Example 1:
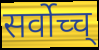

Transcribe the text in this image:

सर्वोच्च्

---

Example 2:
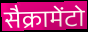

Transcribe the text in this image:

सैक्रामेंटो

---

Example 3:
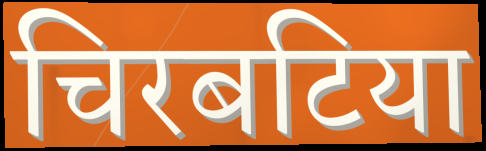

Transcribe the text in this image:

चिरबटिया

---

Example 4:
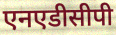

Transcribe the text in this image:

एनएडीसीपी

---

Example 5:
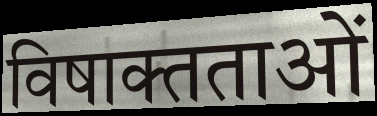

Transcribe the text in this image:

विषाक्तताओं